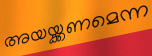
അയയ്ക്കണമെന്ന